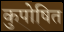
कुपोषित